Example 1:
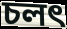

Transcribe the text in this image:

চলৎ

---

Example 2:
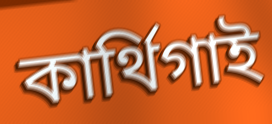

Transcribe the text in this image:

কার্থিগাই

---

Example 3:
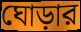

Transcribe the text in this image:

ঘোড়ার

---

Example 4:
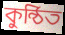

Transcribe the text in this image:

কুন্ঠিত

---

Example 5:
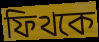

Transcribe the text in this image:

ফিথকে